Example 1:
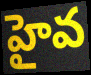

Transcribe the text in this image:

హైవ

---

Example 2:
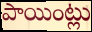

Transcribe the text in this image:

పాయింట్లు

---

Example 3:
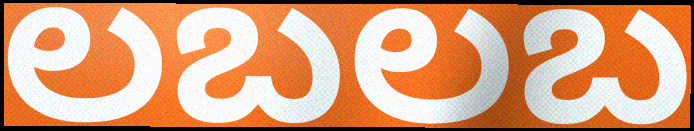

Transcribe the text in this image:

లబలబ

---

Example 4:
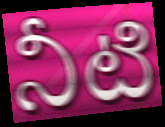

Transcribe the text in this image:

నీటి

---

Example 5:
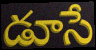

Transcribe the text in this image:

డూసే